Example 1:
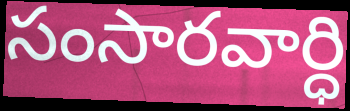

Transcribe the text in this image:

సంసారవార్ధి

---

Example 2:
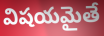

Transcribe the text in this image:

విషయమైతే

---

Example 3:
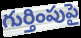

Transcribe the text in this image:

గుర్తింపుపై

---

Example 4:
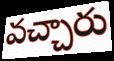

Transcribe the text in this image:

వచ్చారు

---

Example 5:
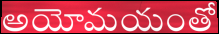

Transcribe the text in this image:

అయోమయంతో